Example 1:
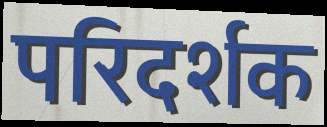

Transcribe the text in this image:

परिदर्शक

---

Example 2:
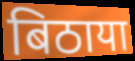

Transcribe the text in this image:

बिठाया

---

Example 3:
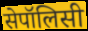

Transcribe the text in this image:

सेपॉलिसी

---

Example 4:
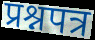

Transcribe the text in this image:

प्रश्नपत्र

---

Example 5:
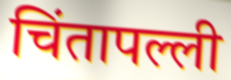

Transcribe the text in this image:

चिंतापल्ली